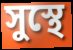
সুস্থে